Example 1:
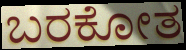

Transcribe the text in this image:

ಬರಕೋತ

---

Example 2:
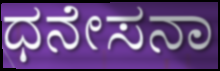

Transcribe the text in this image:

ಧನೇಸನಾ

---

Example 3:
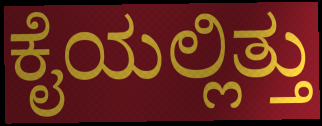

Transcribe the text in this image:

ಕೈಯಲ್ಲಿತ್ತು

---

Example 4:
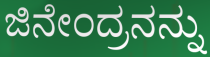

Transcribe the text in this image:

ಜಿನೇಂದ್ರನನ್ನು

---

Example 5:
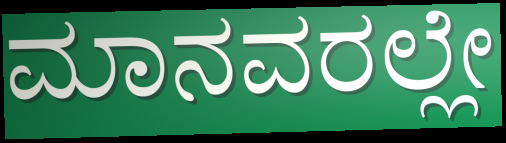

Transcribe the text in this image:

ಮಾನವರಲ್ಲೇ